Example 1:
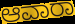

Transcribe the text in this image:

ಆವಾರಾ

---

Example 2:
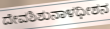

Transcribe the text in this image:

ದೇವಶಿಶುನಾಳಧೀಶನ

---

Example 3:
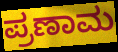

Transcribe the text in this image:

ಪ್ರಣಾಮ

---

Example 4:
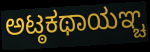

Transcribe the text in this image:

ಅಟ್ಠಕಥಾಯಞ್ಚ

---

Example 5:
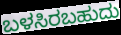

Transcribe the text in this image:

ಬಳಸಿರಬಹುದು